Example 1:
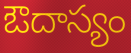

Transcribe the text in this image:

ఔదాస్యం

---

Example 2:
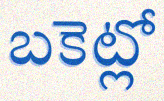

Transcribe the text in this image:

బకెట్లో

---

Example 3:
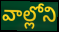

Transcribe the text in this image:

వాల్లోని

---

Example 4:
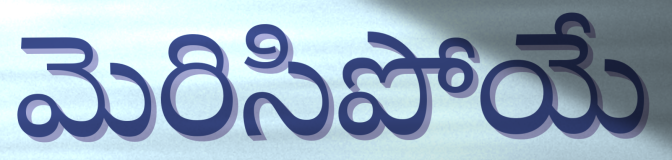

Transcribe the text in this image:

మెరిసిపోయే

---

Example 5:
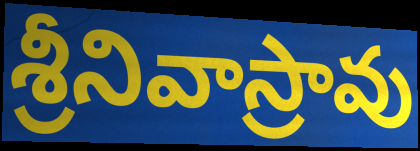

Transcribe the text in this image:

శ్రీనివాస్రావు